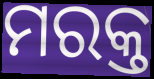
ମରକ୍ତ